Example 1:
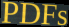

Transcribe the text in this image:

PDFs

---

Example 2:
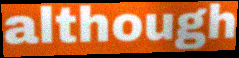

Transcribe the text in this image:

although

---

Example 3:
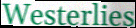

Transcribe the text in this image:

Westerlies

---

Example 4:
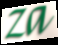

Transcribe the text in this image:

za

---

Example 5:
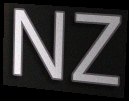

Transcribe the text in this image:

NZ